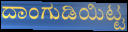
ದಾಂಗುಡಿಯಿಟ್ಟ